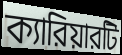
ক্যারিয়ারটি